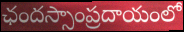
ఛందస్సాంప్రదాయంలో